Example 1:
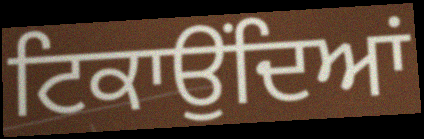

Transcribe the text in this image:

ਟਿਕਾਉਂਦਿਆਂ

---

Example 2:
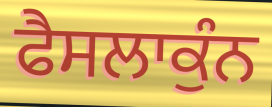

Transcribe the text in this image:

ਫੈਸਲਾਕੁੰਨ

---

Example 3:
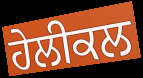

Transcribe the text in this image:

ਹੇਲੀਕਲ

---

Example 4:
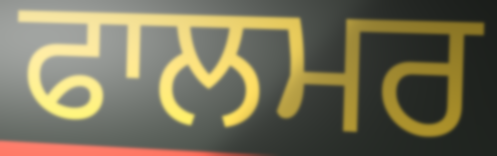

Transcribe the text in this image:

ਫਾਲਮਰ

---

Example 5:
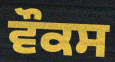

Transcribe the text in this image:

ਵੌਕਸ